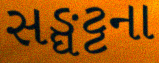
સઙ્ઘટ્ટના